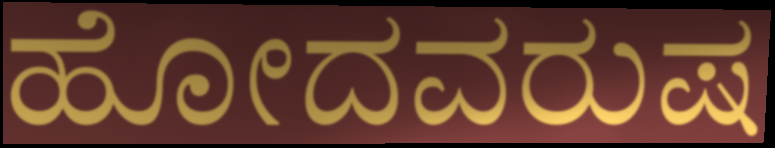
ಹೋದವರುಷ